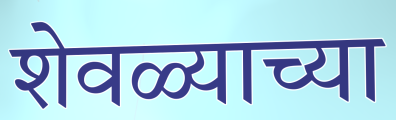
शेवळ्याच्या